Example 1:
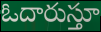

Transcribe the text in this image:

ఓదారుస్తూ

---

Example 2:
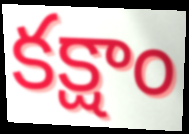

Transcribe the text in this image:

కక్షాం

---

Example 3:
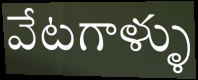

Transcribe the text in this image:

వేటగాళ్ళు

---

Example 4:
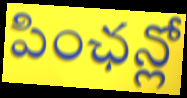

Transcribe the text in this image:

పింఛన్లో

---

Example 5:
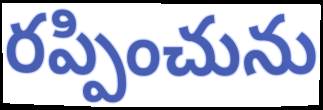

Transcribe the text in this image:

రప్పించును